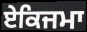
ਏਕਿਜਮਾ